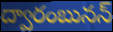
ద్వారంబునన్